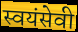
स्वयंसेवी